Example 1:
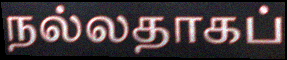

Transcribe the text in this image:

நல்லதாகப்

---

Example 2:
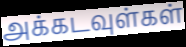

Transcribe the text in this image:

அக்கடவுள்கள்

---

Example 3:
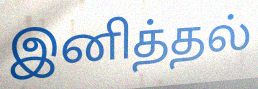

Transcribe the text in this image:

இனித்தல்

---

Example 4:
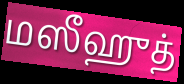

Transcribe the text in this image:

மஸீஹுத்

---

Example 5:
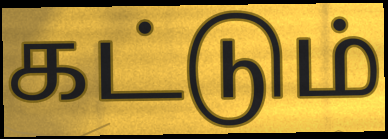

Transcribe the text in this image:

கட்டும்